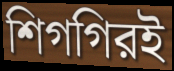
শিগগিরই